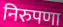
निरुपणा